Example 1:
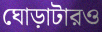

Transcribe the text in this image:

ঘোড়াটারও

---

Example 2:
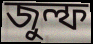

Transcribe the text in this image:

জুল্ফ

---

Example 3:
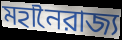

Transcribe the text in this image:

মহানৈরাজ্য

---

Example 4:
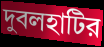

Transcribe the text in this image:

দুবলহাটির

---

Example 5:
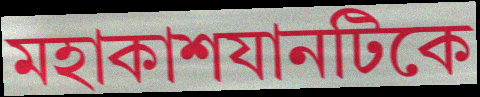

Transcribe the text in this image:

মহাকাশযানটিকে